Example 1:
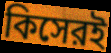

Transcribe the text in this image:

কিসেরই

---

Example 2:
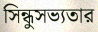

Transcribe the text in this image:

সিন্ধুসভ্যতার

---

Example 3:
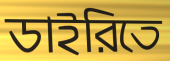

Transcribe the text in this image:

ডাইরিতে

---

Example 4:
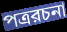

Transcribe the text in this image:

পত্ররচনা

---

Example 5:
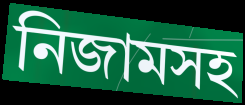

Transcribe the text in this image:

নিজামসহ